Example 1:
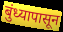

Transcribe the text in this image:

बुंध्यापासून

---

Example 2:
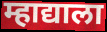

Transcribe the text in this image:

म्हाद्याला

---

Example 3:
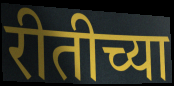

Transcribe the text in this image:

रीतीच्या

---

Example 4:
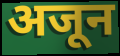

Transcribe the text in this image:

अजून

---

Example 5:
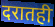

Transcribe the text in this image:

दरातही